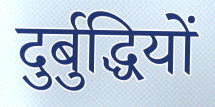
दुर्बुद्धियों